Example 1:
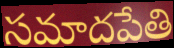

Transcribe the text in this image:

సమాదపేతి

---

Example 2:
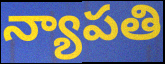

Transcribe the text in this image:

న్యాపతి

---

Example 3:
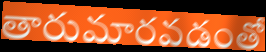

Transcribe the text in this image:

తారుమారవడంతో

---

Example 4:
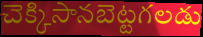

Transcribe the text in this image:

చెక్కిసానబెట్టగలడు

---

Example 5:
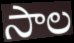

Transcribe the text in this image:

సాల